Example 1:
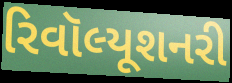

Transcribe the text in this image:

રિવૉલ્યૂશનરી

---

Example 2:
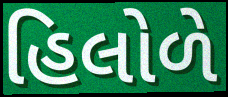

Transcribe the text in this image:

હિલોળે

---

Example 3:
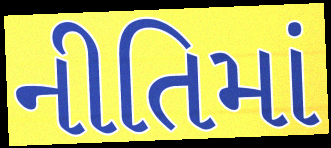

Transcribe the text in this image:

નીતિમાં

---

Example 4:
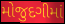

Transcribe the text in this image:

મોજુદગીમાં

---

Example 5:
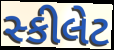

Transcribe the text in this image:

સ્કીલેટ